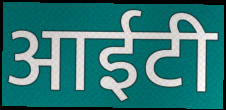
आईटी